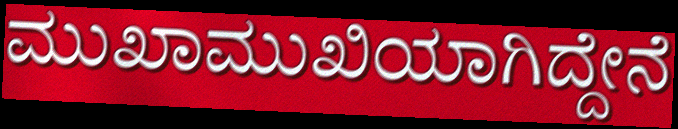
ಮುಖಾಮುಖಿಯಾಗಿದ್ದೇನೆ